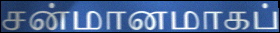
சன்மானமாகப்